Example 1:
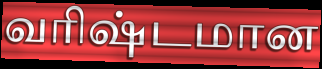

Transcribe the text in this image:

வரிஷ்டமான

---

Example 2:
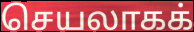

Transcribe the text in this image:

செயலாகக்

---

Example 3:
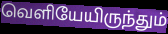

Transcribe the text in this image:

வெளியேயிருந்தும்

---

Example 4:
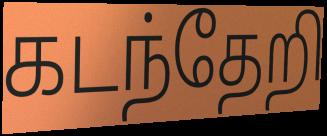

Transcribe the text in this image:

கடந்தேறி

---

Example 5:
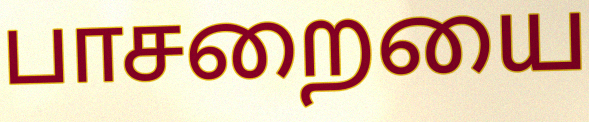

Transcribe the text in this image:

பாசறையை